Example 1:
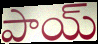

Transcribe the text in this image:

పాయ్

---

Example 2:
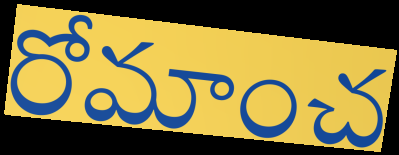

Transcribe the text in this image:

రోమాంచ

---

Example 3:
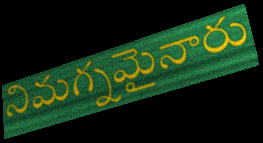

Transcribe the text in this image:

నిమగ్నమైనారు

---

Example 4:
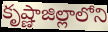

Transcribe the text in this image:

కృష్ణాజిల్లాలోని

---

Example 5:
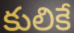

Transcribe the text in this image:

కులికే